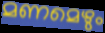
മണമെഴും